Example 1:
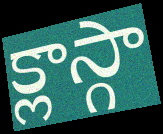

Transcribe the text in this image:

క్లాస్గా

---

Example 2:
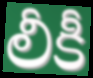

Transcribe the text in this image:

లీకీ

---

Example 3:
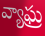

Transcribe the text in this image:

వ్యాఘ్ర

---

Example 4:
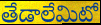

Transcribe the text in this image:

తేడాలేమిటో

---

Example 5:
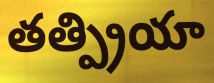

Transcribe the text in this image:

తత్ప్రియా